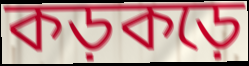
কড়কড়ে